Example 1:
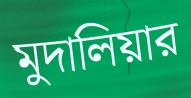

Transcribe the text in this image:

মুদালিয়ার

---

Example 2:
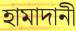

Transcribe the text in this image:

হামাদানী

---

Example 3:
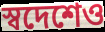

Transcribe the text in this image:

স্বদেশেও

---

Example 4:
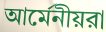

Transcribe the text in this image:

আর্মেনীয়রা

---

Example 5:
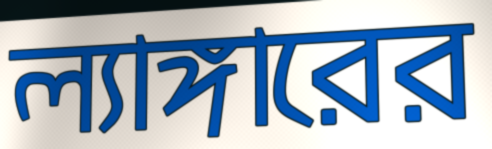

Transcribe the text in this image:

ল্যাঙ্গারের